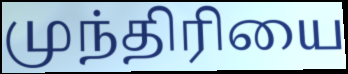
முந்திரியை